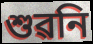
শুৱনি